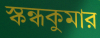
স্কন্ধকুমার